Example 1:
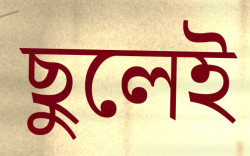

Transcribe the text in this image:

ছুলেই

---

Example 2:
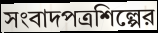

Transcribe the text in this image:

সংবাদপত্রশিল্পের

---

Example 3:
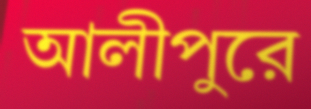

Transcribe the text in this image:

আলীপুরে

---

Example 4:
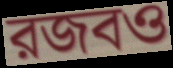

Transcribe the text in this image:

রজবও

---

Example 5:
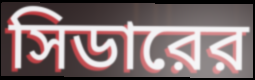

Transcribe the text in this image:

সিডারের